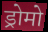
ड्रोमो